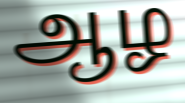
ஆழ